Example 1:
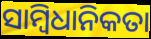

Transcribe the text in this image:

ସାମ୍ବିଧାନିକତା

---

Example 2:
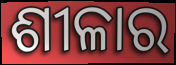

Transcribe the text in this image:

ଶୀଳାର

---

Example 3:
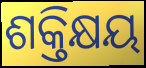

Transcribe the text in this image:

ଶକ୍ତିକ୍ଷୟ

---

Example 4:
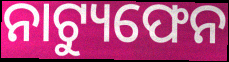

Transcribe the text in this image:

ନାଟ୍ୟୁଫେନ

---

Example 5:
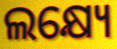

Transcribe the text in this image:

ଲକ୍ଷ୍ୟେ